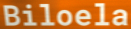
Biloela